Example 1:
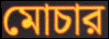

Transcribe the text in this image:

মোচার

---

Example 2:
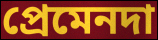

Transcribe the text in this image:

প্রেমেনদা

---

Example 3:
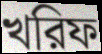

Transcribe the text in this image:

খরিফ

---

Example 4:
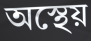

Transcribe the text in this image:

অস্থেয়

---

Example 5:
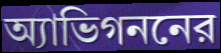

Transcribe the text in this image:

অ্যাভিগননের